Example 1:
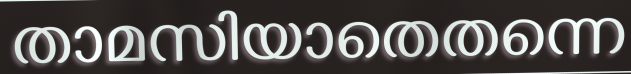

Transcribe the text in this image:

താമസിയാതെതന്നെ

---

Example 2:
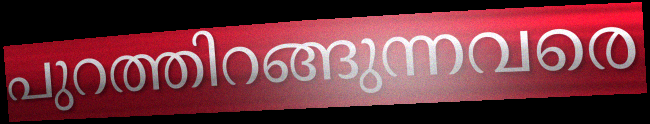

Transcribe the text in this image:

പുറത്തിറങ്ങുന്നവരെ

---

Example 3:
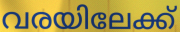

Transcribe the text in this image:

വരയിലേക്ക്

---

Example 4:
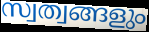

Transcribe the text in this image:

സ്വത്വങ്ങളും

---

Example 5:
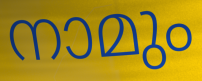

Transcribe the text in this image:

നാമും